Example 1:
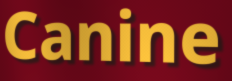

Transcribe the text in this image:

Canine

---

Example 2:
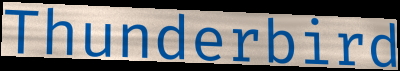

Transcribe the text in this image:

Thunderbird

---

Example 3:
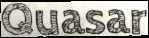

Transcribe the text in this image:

Quasar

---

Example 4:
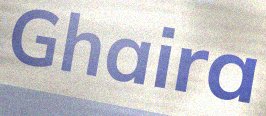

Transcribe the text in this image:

Ghaira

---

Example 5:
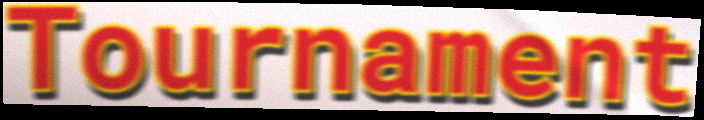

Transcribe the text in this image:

Tournament